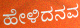
ಹೇಳಿದನವ